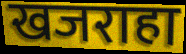
खजराहा